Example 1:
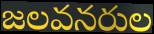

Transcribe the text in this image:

జలవనరుల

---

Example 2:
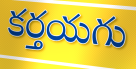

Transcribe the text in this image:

కర్తయగు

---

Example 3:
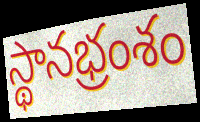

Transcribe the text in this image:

స్థానభ్రంశం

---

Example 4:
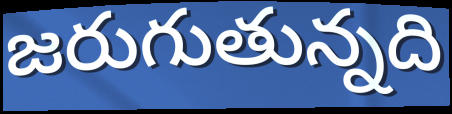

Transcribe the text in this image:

జరుగుతున్నది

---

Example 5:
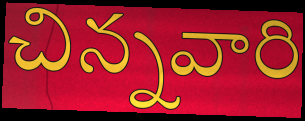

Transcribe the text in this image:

చిన్నవారి